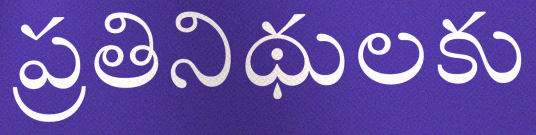
ప్రతినిథులకు